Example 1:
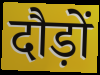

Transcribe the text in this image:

दौड़ों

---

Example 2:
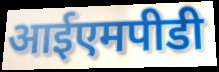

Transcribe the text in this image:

आईएमपीडी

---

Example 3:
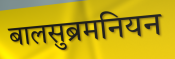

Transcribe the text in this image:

बालसुब्रमनियन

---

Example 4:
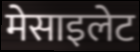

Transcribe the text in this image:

मेसाइलेट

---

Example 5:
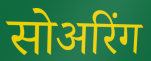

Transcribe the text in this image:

सोअरिंग